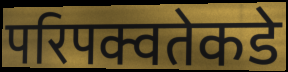
परिपक्वतेकडे